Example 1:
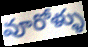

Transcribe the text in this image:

వూరోళ్ళు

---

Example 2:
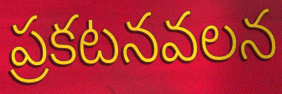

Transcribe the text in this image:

ప్రకటనవలన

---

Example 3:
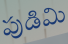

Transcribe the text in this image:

పుడిమి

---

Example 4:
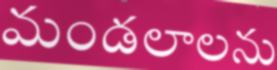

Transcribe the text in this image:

మండలాలను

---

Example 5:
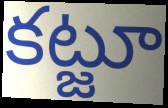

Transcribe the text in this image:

కట్జూ